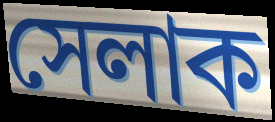
সেলাক